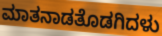
ಮಾತನಾಡತೊಡಗಿದಳು